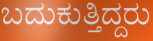
ಬದುಕುತ್ತಿದ್ದರು